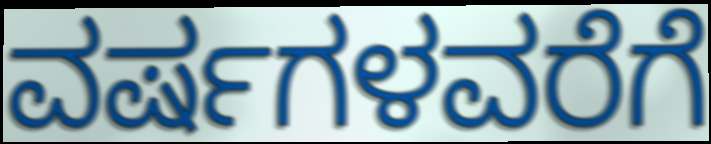
ವರ್ಷಗಳವರೆಗೆ